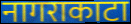
नागराकाटा